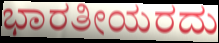
ಭಾರತೀಯರದು